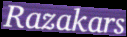
Razakars